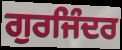
ਗੁਰਜਿੰਦਰ